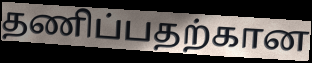
தணிப்பதற்கான